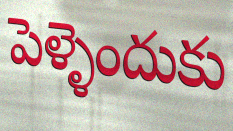
పెళ్ళెందుకు